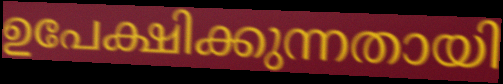
ഉപേക്ഷിക്കുന്നതായി